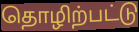
தொழிற்பட்டு